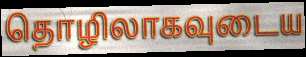
தொழிலாகவுடைய